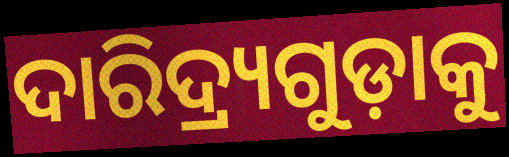
ଦାରିଦ୍ର୍ୟଗୁଡ଼ାକୁ